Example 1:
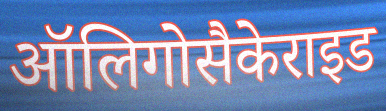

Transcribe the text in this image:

ऑलिगोसैकेराइड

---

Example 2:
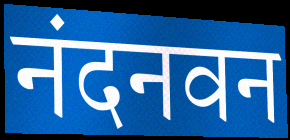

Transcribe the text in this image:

नंदनवन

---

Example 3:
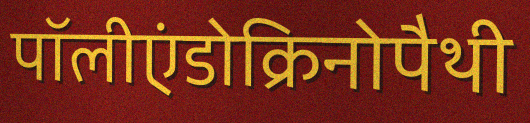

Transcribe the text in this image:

पॉलीएंडोक्रिनोपैथी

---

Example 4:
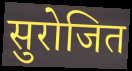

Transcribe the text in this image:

सुरोजित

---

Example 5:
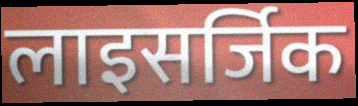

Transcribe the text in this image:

लाइसर्जिक